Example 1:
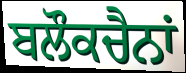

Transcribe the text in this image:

ਬਲੌਕਚੈਨਾਂ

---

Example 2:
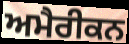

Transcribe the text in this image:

ਅਮੈਰੀਕਨ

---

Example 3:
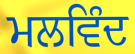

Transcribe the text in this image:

ਮਲਵਿੰਦ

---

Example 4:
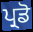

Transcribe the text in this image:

ਪ੍ਰਡੋ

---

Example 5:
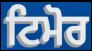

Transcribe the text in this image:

ਟਿਮੋਰ